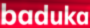
baduka